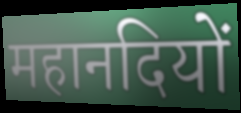
महानदियों